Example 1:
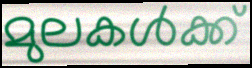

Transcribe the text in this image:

മുലകൾക്ക്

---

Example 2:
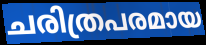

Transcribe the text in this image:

ചരിത്രപരമായ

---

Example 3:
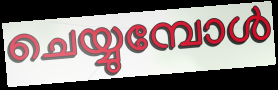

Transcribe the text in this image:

ചെയ്യുമ്പോൾ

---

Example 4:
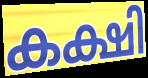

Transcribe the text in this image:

കക്ഷി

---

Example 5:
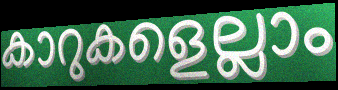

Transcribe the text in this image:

കാറുകളെല്ലാം